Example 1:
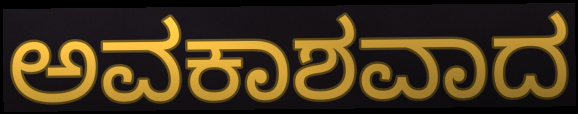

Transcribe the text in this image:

ಅವಕಾಶವಾದ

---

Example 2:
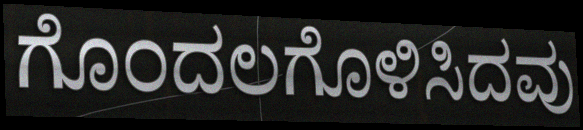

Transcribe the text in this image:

ಗೊಂದಲಗೊಳಿಸಿದವು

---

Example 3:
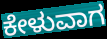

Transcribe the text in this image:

ಕೇಳುವಾಗ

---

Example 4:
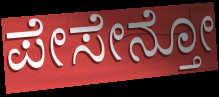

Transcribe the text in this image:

ಪೇಸೇನ್ತೋ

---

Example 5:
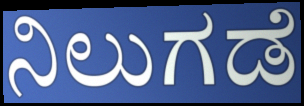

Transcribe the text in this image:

ನಿಲುಗಡೆ